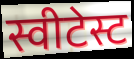
स्वीटेस्ट